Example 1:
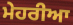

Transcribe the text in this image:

ਮੇਹਰੀਆ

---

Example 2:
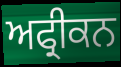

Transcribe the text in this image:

ਅਫ੍ਰੀਕਨ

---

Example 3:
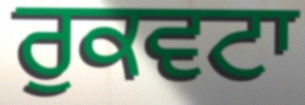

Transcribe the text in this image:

ਰੁਕਵਟਾ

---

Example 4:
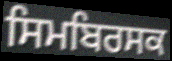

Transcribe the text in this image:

ਸਿਮਬਿਰਸਕ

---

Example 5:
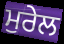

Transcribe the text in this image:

ਮੁਰੇਲ